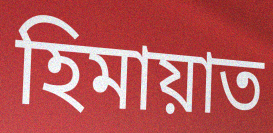
হিমায়াত